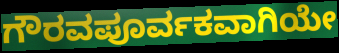
ಗೌರವಪೂರ್ವಕವಾಗಿಯೇ